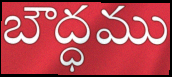
బౌద్ధము